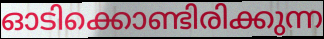
ഓടിക്കൊണ്ടിരിക്കുന്ന